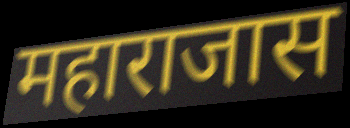
महाराजास